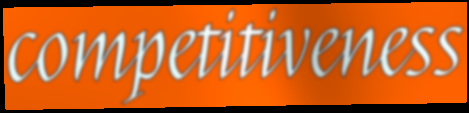
competitiveness